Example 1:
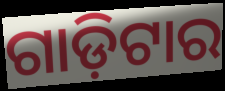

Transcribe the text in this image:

ଗାଡ଼ିଟାର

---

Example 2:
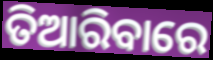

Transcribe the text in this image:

ତିଆରିବାରେ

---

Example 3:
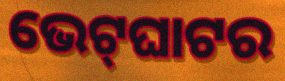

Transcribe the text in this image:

ଭେଟ୍‌ଘାଟର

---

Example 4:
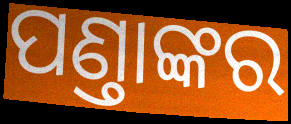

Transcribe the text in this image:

ପଣ୍ତାଙ୍କର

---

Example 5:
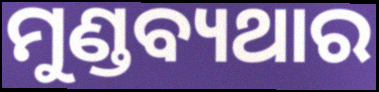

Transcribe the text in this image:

ମୁଣ୍ଡବ୍ୟଥାର